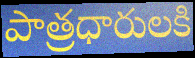
పాత్రధారులకి